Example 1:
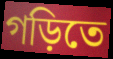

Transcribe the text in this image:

গড়িতে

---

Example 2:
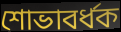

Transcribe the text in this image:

শোভাবর্ধক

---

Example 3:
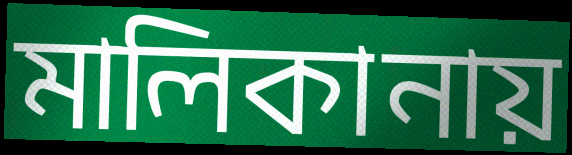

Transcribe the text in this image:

মালিকানায়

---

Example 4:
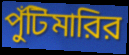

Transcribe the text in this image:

পুঁটিমারির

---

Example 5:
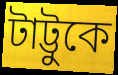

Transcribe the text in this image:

টাট্টুকে